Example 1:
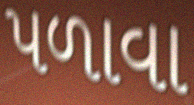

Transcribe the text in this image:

પળાવા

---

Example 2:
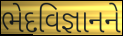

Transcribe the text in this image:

ભેદવિજ્ઞાનને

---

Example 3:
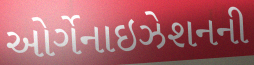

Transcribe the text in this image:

ઓર્ગેનાઇઝેશનની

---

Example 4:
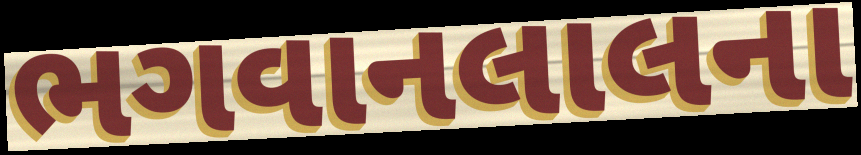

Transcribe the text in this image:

ભગવાનલાલના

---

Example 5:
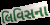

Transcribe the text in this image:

લિવિસના